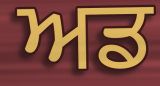
ਅਡ